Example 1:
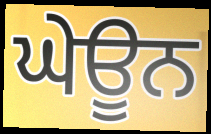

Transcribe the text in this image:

ਘੇਊਨ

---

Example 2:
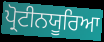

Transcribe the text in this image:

ਪ੍ਰੋਟੀਨਯੂਰਿਆ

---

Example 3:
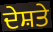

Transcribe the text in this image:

ਦੇਸ਼ਤੇ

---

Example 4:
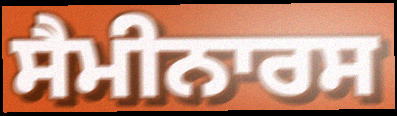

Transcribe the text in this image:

ਸੈਮੀਨਾਰਸ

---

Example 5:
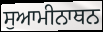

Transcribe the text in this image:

ਸੁਆਮੀਨਾਥਨ